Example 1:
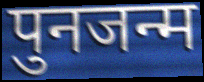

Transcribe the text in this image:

पुनजन्म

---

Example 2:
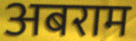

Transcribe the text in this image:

अबराम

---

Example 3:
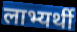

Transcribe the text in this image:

लाभ्यर्थी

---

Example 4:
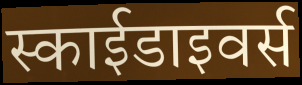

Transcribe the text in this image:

स्काईडाइवर्स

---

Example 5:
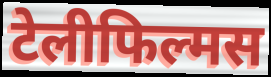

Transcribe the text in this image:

टेलीफिल्मस